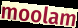
moolam